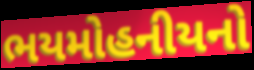
ભયમોહનીયનો